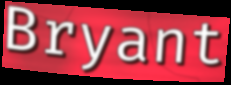
Bryant